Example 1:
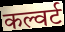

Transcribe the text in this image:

कल्वर्ट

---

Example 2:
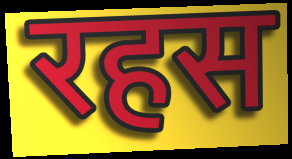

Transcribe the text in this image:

रहस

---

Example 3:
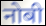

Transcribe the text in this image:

नोबी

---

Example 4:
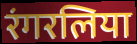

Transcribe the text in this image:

रंगरलिया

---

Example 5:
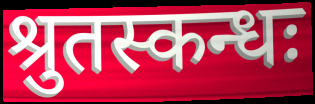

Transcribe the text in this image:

श्रुतस्कन्धः